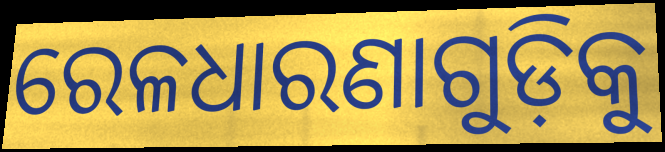
ରେଳଧାରଣାଗୁଡ଼ିକୁ